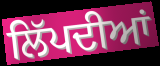
ਲਿੱਪਦੀਆਂ